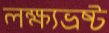
লক্ষ্যভ্রষ্ট